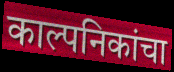
काल्पनिकांचा